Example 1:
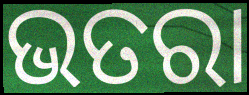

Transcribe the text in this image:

ଭତରା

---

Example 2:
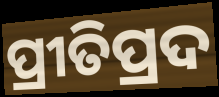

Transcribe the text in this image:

ପ୍ରୀତିପ୍ରଦ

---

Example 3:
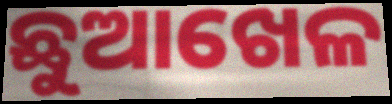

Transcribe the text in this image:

ଛୁଆଖେଳ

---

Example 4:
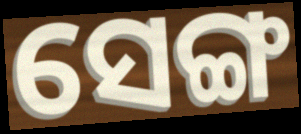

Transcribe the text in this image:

ସେଙ୍ଗ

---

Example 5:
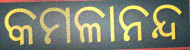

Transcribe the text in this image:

କମଳାନନ୍ଦ